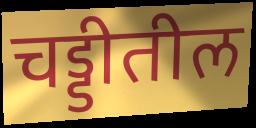
चड्डीतील